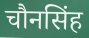
चौनसिंह